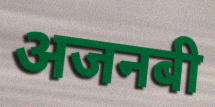
अजनबी